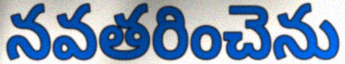
నవతరించెను